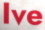
Ive